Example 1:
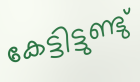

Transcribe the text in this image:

കേട്ടിട്ടുണ്ടു്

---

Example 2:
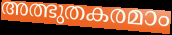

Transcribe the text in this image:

അത്ഭുതകരമാം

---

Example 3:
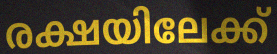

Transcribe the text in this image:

രക്ഷയിലേക്ക്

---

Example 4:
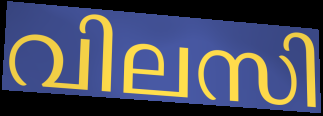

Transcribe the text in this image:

വിലസി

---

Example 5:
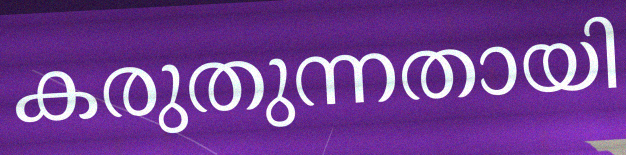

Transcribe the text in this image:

കരുതുന്നതായി